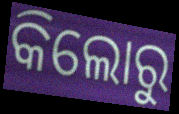
କିଲୋରୁ